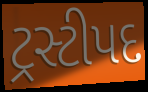
ટ્રસ્ટીપદ